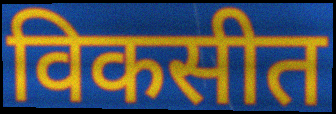
विकसीत